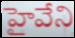
హైవేని